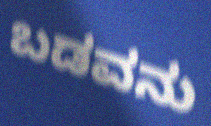
ಬಡವನು